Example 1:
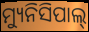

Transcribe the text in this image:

ମ୍ୟୁନିସିପାଲ୍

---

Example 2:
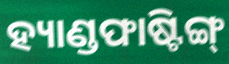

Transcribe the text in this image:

ହ୍ୟାଣ୍ଡଫାଷ୍ଟିଙ୍ଗ୍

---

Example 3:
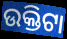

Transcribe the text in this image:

ଉକ୍ତିଟା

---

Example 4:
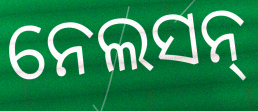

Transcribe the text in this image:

ନେଲସନ୍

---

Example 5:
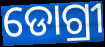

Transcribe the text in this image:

ଡୋଗ୍ରୀ